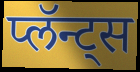
प्लॅन्ट्स